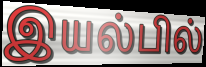
இயல்பில்